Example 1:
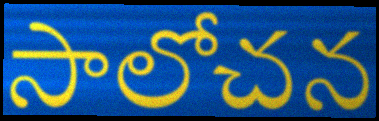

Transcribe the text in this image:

సాలోచన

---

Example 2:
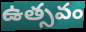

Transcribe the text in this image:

ఉత్సవం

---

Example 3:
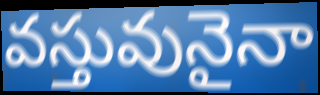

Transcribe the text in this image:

వస్తువునైనా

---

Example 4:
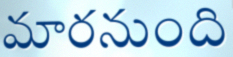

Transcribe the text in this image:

మారనుంది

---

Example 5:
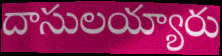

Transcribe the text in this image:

దాసులయ్యారు